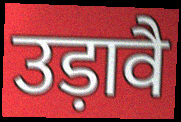
उड़ावै